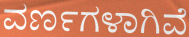
ವರ್ಣಗಳಾಗಿವೆ